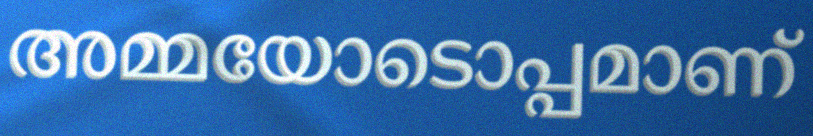
അമ്മയോടൊപ്പമാണ്